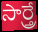
సార్త్రే